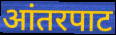
आंतरपाट